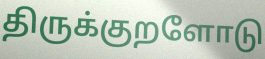
திருக்குறளோடு